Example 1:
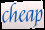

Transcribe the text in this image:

cheap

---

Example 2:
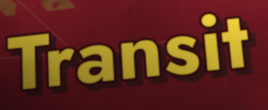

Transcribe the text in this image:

Transit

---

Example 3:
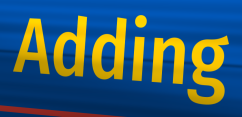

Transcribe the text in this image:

Adding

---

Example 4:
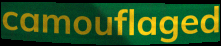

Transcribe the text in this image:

camouflaged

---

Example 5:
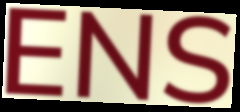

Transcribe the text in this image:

ENS